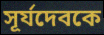
সূর্যদেবকে